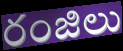
రంజిలు